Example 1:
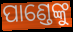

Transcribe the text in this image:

ପାଣ୍ଡେଙ୍କୁ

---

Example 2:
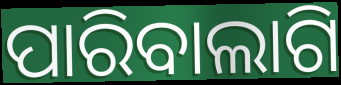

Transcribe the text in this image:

ପାରିବାଲାଗି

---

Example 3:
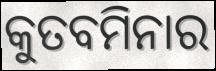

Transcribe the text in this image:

କୁତବମିନାର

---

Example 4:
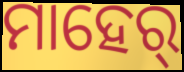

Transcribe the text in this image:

ମାହେର୍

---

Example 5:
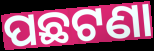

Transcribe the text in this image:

ପଛଟଣା